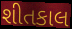
શીતકાલ